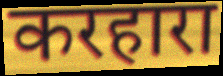
करहारा